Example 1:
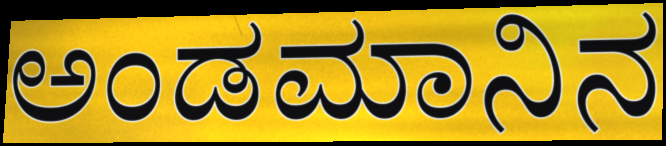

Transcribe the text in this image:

ಅಂಡಮಾನಿನ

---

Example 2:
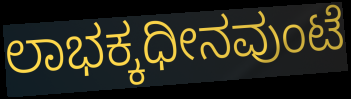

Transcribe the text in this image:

ಲಾಭಕ್ಕಧೀನವುಂಟೆ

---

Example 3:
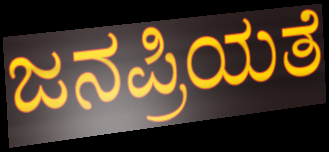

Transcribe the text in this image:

ಜನಪ್ರಿಯತೆ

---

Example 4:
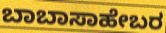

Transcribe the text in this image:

ಬಾಬಾಸಾಹೇಬರ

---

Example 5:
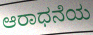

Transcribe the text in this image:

ಆರಾಧನೆಯ